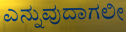
ಎನ್ನುವುದಾಗಲೀ